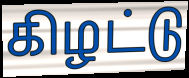
கிழட்டு